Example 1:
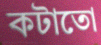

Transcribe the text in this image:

কটাতো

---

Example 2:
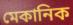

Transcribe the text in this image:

মেকানিক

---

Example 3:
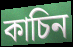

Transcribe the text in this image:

কাচিন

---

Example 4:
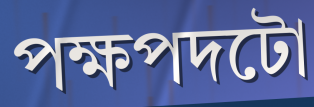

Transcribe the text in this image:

পক্ষপদটো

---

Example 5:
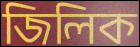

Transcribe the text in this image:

জিলিক